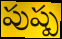
పుష్ప